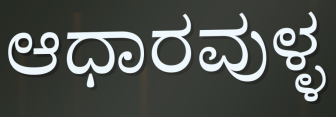
ಆಧಾರವುಳ್ಳ